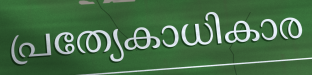
പ്രത്യേകാധികാര